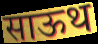
साऊथ